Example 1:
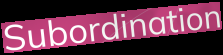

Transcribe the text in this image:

Subordination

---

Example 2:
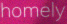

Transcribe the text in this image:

homely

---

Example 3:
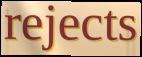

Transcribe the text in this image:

rejects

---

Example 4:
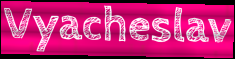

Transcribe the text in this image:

Vyacheslav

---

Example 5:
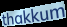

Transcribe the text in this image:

thakkum